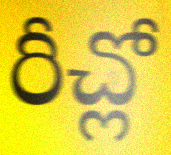
రీచ్లో